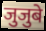
जुजुबे